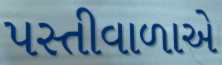
પસ્તીવાળાએ